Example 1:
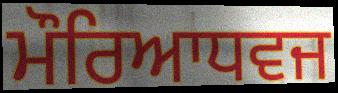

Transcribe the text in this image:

ਮੌਰਿਆਧਵਜ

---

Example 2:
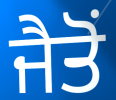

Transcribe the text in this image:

ਜੈਤੋਂ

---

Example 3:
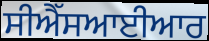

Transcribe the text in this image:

ਸੀਐੱਸਆਈਆਰ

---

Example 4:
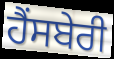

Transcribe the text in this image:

ਹੈਂਸਬੇਰੀ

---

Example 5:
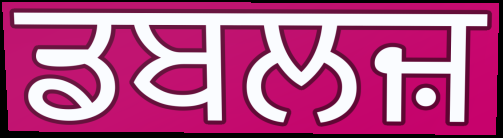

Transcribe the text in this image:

ਡਬਲਜ਼